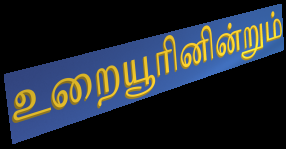
உறையூரினின்றும்